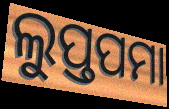
ଲୁପ୍ତପମା